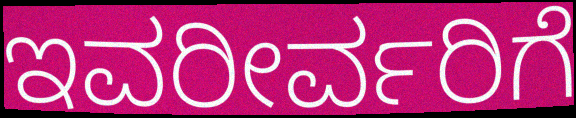
ಇವರೀರ್ವರಿಗೆ